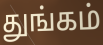
துங்கம்